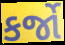
કર્જો